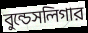
বুন্ডেসলিগার